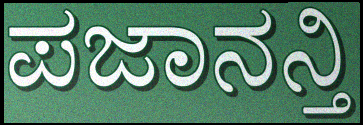
ಪಜಾನನ್ತಿ